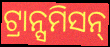
ଟ୍ରାନ୍ସମିସନ୍